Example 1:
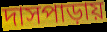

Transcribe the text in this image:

দাসপাড়ায়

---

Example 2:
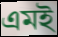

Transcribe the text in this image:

এমই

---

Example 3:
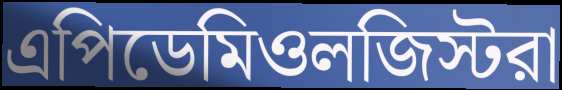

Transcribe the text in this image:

এপিডেমিওলজিস্টরা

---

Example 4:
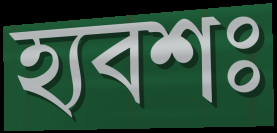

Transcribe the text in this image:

হ্যবশঃ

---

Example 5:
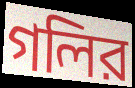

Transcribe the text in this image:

গলির